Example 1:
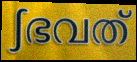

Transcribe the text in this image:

ഽഭവത്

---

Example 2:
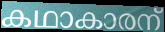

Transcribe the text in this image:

കഥാകാരന്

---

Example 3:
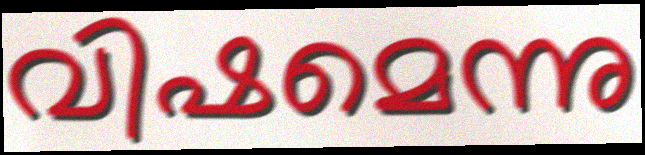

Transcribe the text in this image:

വിഷമെന്നു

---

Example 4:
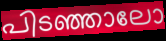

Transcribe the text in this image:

പിടഞ്ഞാലോ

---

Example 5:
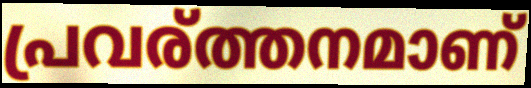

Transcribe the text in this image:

പ്രവര്ത്തനമാണ്